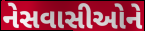
નેસવાસીઓને